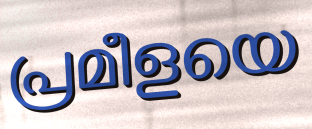
പ്രമീളയെ